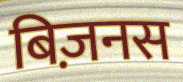
बिज़नस